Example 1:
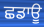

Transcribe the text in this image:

ਛਡਾਊ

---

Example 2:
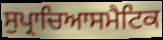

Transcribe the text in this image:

ਸੁਪ੍ਰਾਚਿਆਸਮੈਟਿਕ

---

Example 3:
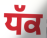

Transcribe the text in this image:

ਧੱਕ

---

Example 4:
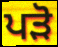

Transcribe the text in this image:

ਪੜੋ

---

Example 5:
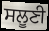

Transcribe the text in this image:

ਸਲੂਣੀ